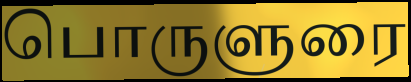
பொருளுரை